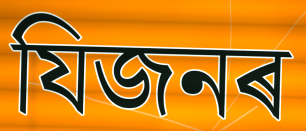
যিজনৰ